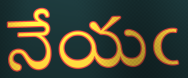
నేయఁ